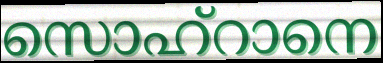
സൊഹ്റാനെ